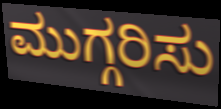
ಮುಗ್ಗರಿಸು